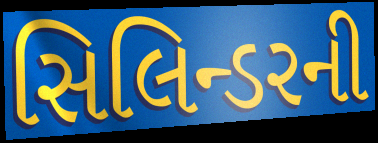
સિલિન્ડરની